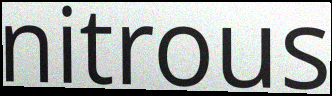
nitrous